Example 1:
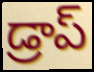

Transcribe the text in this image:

డ్రాప్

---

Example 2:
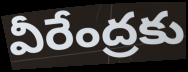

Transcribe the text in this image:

వీరేంద్రకు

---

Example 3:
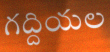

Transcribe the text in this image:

గద్దియల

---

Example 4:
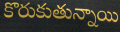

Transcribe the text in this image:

కొరుకుతున్నాయి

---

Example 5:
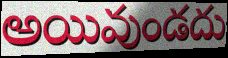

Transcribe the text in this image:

అయివుండదు